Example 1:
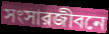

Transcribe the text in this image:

সংসারজীবনে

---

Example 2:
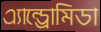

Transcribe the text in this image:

এ্যান্ড্রোমিডা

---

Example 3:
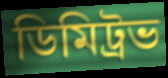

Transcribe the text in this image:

ডিমিট্রভ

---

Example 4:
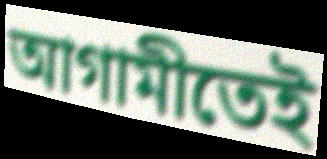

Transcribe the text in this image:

আগামীতেই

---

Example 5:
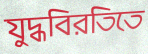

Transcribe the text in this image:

যুদ্ধবিরতিতে